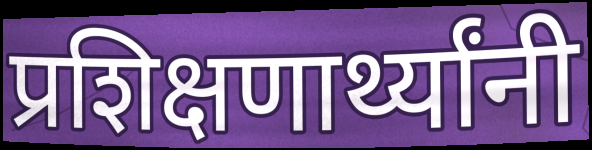
प्रशिक्षणार्थ्यांनी